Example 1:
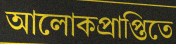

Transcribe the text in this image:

আলোকপ্রাপ্তিতে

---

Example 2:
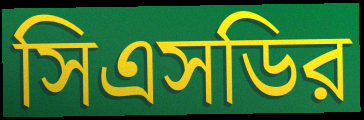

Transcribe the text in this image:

সিএসডির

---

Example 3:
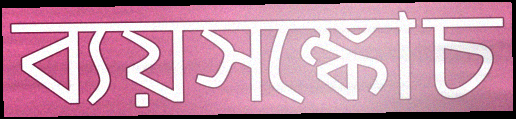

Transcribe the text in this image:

ব্যয়সঙ্কোচ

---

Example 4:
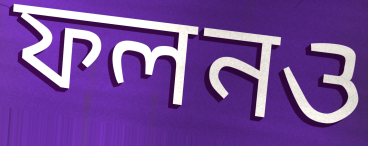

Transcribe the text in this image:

ফলনও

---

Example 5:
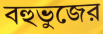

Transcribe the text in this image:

বহুভুজের